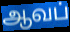
ஆவப்